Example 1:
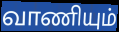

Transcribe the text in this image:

வாணியும்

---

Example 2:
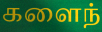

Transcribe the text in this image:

களைந்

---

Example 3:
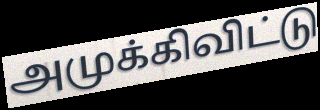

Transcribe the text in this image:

அமுக்கிவிட்டு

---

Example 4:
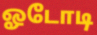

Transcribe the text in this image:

ஓடோடி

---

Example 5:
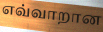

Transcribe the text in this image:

எவ்வாறான